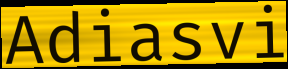
Adiasvi